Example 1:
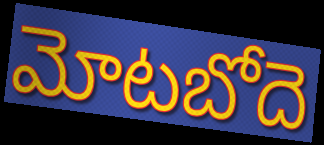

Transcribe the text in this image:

మోటబోదె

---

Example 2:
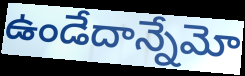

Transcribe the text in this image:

ఉండేదాన్నేమో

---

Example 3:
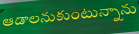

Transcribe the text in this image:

ఆడాలనుకుంటున్నాను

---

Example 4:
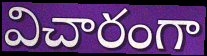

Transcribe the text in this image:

విచారంగా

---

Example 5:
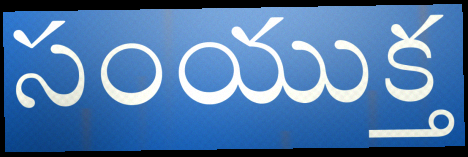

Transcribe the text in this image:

సంయుక్త